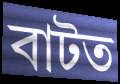
বাটত